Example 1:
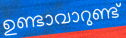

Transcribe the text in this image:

ഉണ്ടാവാറുണ്ട്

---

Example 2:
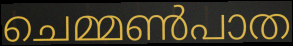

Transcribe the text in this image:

ചെമ്മൺപാത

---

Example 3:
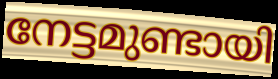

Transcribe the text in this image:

നേട്ടമുണ്ടായി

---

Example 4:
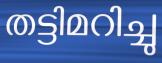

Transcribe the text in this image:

തട്ടിമറിച്ചു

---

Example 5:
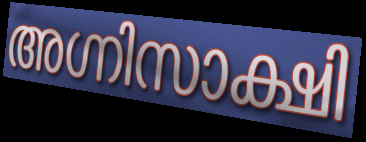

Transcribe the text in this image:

അഗ്നിസാക്ഷി